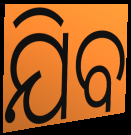
ଯିବ